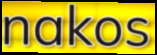
nakos